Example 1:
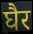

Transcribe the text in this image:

घैर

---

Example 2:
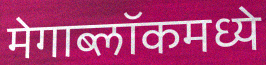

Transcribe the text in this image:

मेगाब्लॉकमध्ये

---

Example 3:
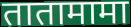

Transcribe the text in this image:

तातामामा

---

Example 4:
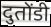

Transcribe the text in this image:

दुतोंडी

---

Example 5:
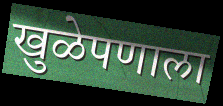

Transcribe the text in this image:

खुळेपणाला